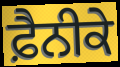
ਫ਼ੈਨੀਕੇ